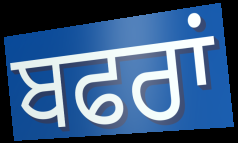
ਬਫਰਾਂ